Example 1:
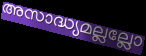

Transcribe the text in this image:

അസാദ്ധ്യമല്ലല്ലോ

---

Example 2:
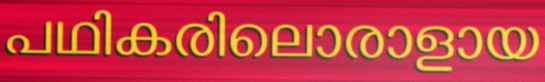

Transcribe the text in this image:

പഥികരിലൊരാളായ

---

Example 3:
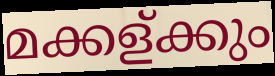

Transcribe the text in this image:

മക്കള്ക്കും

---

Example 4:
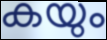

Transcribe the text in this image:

കയും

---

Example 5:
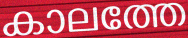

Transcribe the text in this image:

കാലത്തേ